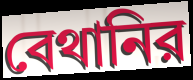
বেথানির